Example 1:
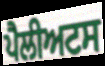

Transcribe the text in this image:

ਪੈਲੀਅਟਸ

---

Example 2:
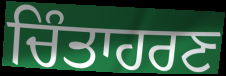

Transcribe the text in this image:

ਚਿੰਤਾਹਰਣ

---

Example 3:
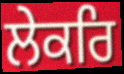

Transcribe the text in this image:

ਲੇਕਰਿ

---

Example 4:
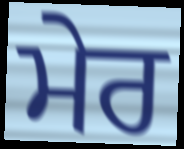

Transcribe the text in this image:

ਮੇਰ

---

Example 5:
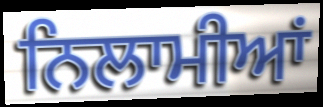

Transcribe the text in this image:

ਨਿਲਾਮੀਆਂ